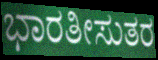
ಭಾರತೀಸುತರ